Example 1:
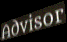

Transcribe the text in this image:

Advisor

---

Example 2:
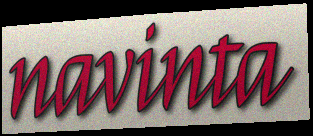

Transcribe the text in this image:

navinta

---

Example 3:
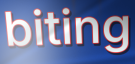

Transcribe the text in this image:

biting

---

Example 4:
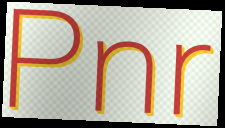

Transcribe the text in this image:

Pnr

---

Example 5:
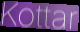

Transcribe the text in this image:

Kottar